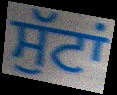
ਸੁੱਟਾਂ